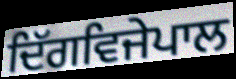
ਦਿੱਗਵਿਜੇਪਾਲ